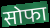
सोफा